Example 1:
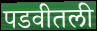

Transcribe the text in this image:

पडवीतली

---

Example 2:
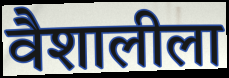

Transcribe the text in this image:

वैशालीला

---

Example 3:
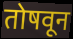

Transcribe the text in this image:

तोषवून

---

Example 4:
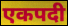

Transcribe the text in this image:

एकपदी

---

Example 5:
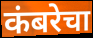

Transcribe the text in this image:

कंबरेचा